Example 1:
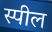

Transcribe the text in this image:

स्पील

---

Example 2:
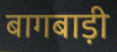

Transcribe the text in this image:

बागबाड़ी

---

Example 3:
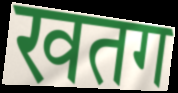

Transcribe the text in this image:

खतग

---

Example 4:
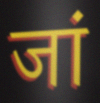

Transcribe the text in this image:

जां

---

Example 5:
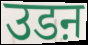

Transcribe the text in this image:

उडऩ